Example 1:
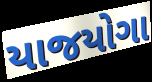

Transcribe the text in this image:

યાજયોગા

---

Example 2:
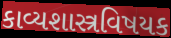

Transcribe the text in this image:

કાવ્યશાસ્ત્રવિષયક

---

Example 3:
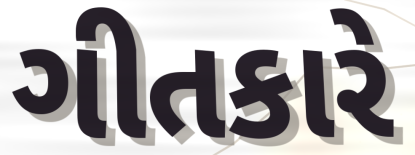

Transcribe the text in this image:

ગીતકારે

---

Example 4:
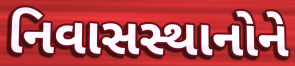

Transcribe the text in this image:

નિવાસસ્થાનોને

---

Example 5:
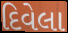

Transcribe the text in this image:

દિવેલા